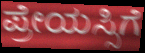
ಪ್ರೇಯಸ್ಸಿಗೆ